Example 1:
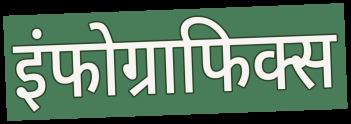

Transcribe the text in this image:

इंफोग्राफिक्स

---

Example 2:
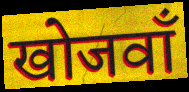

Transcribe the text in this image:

खोजवाँ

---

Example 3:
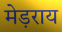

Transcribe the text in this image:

मेड़राय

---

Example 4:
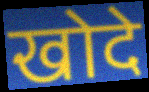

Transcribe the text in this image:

खोदे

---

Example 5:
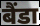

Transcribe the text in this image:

बैंडा